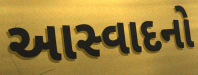
આસ્વાદનો